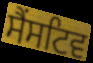
ਸੈਂਸਟਿਵ